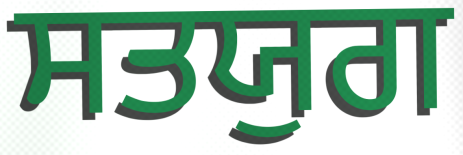
ਸਤਯੁਗ